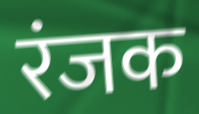
रंजक